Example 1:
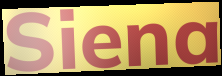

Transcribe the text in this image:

Siena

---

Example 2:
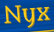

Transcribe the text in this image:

Nyx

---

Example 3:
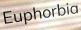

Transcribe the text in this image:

Euphorbia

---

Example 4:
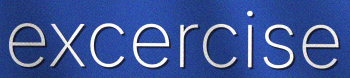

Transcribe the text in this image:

excercise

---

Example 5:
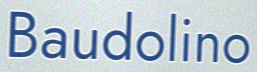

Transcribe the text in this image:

Baudolino